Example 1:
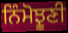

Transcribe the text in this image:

ਨਿੰਮੋਝੂਣੀ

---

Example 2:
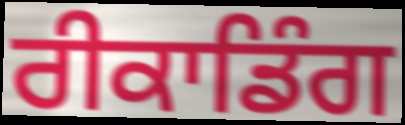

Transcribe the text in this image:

ਰੀਕਾਡਿੰਗ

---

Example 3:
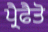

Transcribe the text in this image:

ਪ੍ਰੈਫੈਤੋ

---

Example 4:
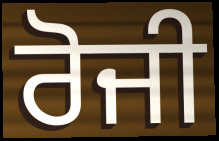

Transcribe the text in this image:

ਰੋਜੀ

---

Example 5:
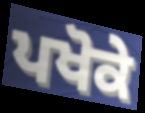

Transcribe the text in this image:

ਪਖੋਕੇ